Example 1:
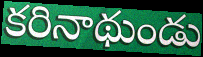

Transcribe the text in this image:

కరినాథుండు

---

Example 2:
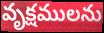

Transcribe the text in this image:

వృక్షములను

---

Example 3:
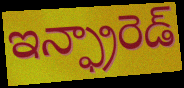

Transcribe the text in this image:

ఇన్ఫ్రారెడ్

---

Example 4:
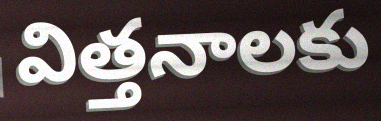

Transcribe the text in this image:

విత్తనాలకు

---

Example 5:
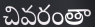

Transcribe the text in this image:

చివరంతా